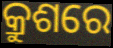
କ୍ରୁଶରେ